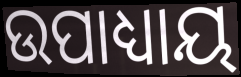
ଉପାଧ୍ୟାୟ